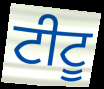
ਟੀਟੂ